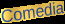
Comedia